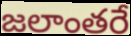
జలాంతరే